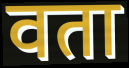
वता